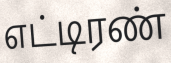
எட்டிரண்